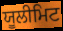
ਯੂਲੀਮਿਟ